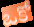
ఒకో